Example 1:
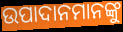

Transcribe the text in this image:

ଉପାଦାନମାନଙ୍କୁ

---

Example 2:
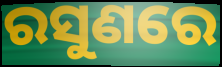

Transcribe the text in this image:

ରସୁଣରେ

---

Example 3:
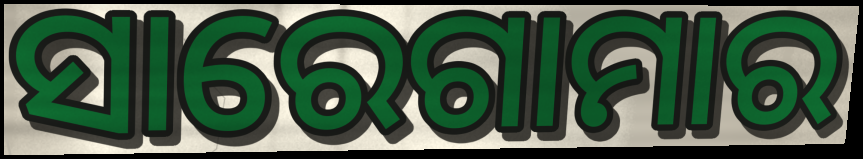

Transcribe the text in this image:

ସାରେଗାମାର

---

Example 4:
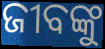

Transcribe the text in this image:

ଜୀବଙ୍କୁ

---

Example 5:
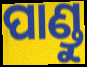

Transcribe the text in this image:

ପାଣ୍ଡୁ